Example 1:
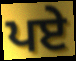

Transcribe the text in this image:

ਪਏ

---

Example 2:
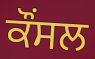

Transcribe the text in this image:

ਕੌਂਸਲ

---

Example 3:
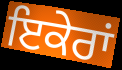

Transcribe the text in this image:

ਇਕੇਰਾਂ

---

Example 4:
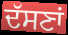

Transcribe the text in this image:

ਦੱਸਣਾਂ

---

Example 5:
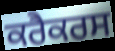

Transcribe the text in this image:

ਕਰੈਕਰਸ